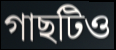
গাছটিও